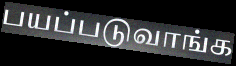
பயப்படுவாங்க